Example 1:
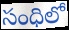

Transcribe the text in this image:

సంధిలో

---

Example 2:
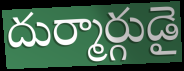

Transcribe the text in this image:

దుర్మార్గుడై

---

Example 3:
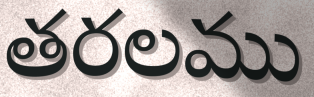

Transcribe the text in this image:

తరలము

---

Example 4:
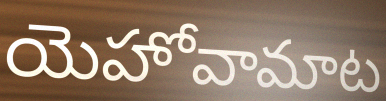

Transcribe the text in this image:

యెహోవామాట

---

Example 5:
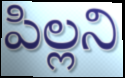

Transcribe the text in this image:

పిల్లని